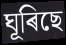
ঘূৰিছে